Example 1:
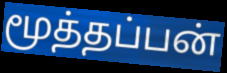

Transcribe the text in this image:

மூத்தப்பன்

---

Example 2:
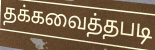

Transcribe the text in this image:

தக்கவைத்தபடி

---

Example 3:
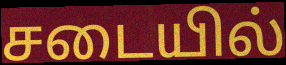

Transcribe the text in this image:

சடையில்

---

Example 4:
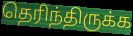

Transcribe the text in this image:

தெரிந்திருக்க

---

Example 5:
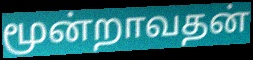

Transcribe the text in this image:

மூன்றாவதன்